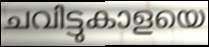
ചവിട്ടുകാളയെ